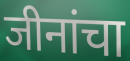
जीनांचा